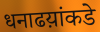
धनाढय़ांकडे